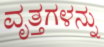
ವೃತ್ತಗಳನ್ನು